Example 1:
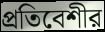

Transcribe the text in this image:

প্রতিবেশীর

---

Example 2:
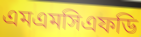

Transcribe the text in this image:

এমএমসিএফডি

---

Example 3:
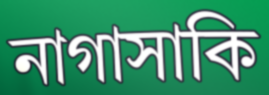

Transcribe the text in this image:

নাগাসাকি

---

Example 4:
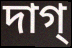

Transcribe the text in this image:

দাগ্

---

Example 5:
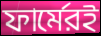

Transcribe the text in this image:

ফার্মেরই